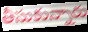
తీసుకున్నారు